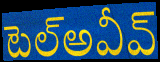
టెల్అవీవ్